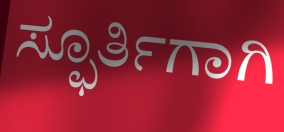
ಸ್ಫೂರ್ತಿಗಾಗಿ